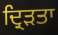
ਦ੍ਰਿੜਤਾ